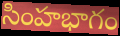
సింహభాగం